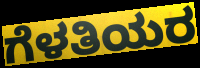
ಗೆಳತಿಯರ